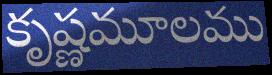
కృష్ణమూలము